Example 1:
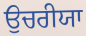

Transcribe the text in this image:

ਉਚਰੀਯਾ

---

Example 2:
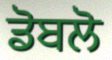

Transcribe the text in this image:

ਡੋਬਲੋ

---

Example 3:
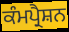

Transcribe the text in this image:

ਕੰਮਪ੍ਰੈਸ਼ਨ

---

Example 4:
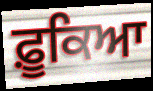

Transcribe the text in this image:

ਫ਼ੂਕਿਆ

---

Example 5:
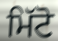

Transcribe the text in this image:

ਮਿੱਟੋ